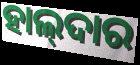
ହାଲ୍‌ଦାର